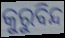
କୁରୁବିନ୍ଦ